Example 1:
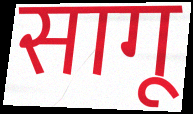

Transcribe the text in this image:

सागू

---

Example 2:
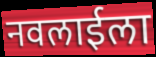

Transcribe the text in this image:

नवलाईला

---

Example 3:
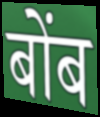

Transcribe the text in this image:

बोंब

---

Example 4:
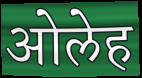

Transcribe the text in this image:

ओलेह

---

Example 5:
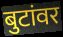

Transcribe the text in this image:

बुटांवर